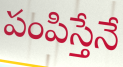
పంపిస్తేనే